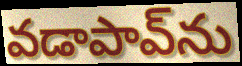
వడాపావ్‌ను